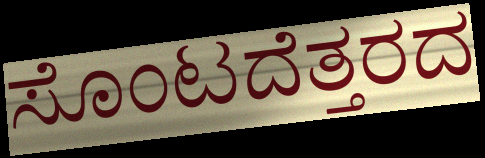
ಸೊಂಟದೆತ್ತರದ